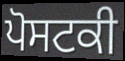
ਪੋਸਟਕੀ